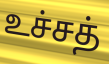
உச்சத்